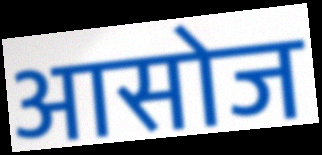
आसोज